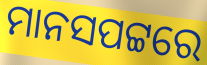
ମାନସପଟ୍ଟରେ